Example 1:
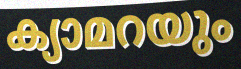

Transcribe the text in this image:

ക്യാമറയും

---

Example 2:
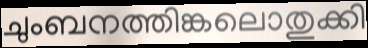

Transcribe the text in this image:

ചുംബനത്തിങ്കലൊതുക്കി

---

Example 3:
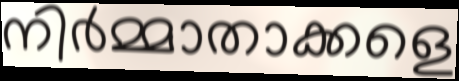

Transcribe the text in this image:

നിർമ്മാതാക്കളെ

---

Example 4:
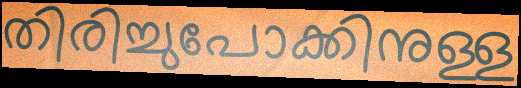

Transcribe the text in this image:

തിരിച്ചുപോക്കിനുള്ള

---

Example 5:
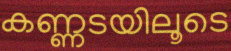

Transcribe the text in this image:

കണ്ണടയിലൂടെ